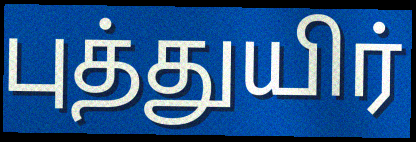
புத்துயிர்